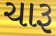
ચારૂ